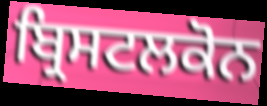
ਬ੍ਰਿਸਟਲਕੋਨ